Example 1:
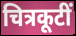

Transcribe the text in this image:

चित्रकूटीं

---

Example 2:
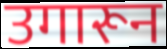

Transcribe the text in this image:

उगारून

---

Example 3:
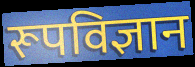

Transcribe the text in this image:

रूपविज्ञान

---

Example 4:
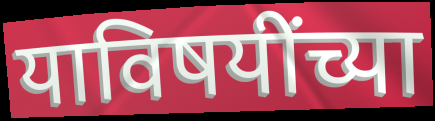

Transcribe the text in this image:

याविषयींच्या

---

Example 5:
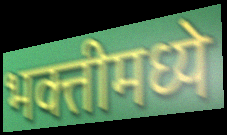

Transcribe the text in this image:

भक्तीमध्ये